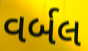
વર્બલ